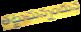
తట్టుచున్నందున